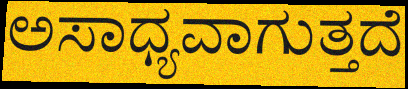
ಅಸಾಧ್ಯವಾಗುತ್ತದೆ